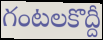
గంటలకొద్దీ